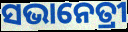
ସଭାନେତ୍ରୀ